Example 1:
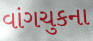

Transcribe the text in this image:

વાંગચુકના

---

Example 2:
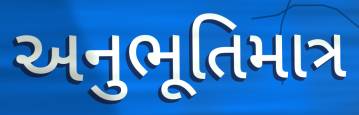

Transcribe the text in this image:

અનુભૂતિમાત્ર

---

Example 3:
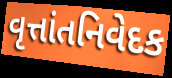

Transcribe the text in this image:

વૃત્તાંતનિવેદક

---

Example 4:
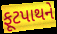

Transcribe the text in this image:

ફૂટપાથને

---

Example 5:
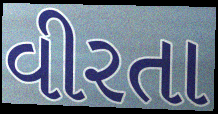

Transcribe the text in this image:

વીરતા